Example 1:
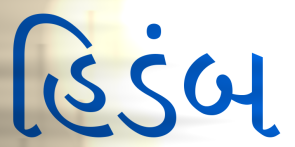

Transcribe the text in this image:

હિડંબ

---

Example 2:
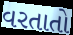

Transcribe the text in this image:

વરતાતો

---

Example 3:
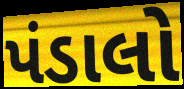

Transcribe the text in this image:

પંડાલો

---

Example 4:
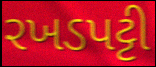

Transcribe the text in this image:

રખડપટ્ટી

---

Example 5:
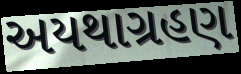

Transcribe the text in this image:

અયથાગ્રહણ